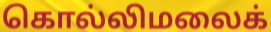
கொல்லிமலைக்